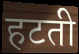
हटती